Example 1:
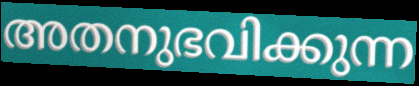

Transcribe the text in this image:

അതനുഭവിക്കുന്ന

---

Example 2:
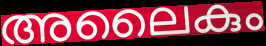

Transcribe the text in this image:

അലൈകും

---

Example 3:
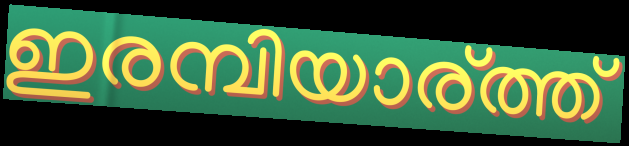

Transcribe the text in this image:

ഇരമ്പിയാര്ത്ത്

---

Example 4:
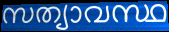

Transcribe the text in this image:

സത്യാവസ്ഥ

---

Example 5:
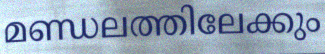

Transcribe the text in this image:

മണ്ഡലത്തിലേക്കും